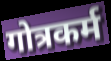
गोत्रकर्म